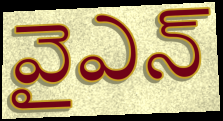
వైఎన్